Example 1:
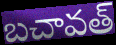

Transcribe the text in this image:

బచావత్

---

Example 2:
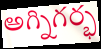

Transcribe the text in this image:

అగ్నిగర్భ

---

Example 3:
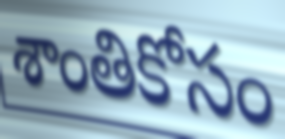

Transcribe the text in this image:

శాంతికోసం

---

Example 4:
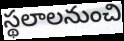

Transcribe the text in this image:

స్థలాలనుంచి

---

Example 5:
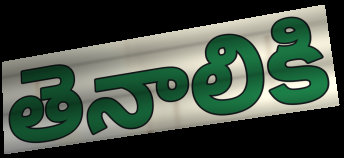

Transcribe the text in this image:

తెనాలికి